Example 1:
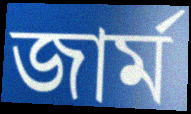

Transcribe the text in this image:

জার্ম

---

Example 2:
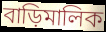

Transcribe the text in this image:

বাড়িমালিক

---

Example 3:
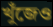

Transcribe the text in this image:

খুঁজেও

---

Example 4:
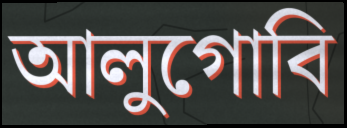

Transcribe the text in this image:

আলুগোবি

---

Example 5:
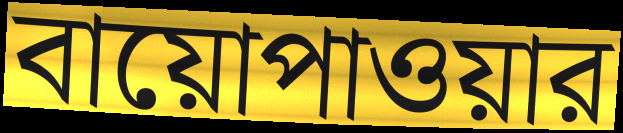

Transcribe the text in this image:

বায়োপাওয়ার